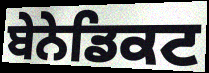
ਬੇਨੇਡਿਕਟ